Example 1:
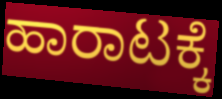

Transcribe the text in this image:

ಹಾರಾಟಕ್ಕೆ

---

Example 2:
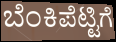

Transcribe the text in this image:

ಬೆಂಕಿಪೆಟ್ಟಿಗೆ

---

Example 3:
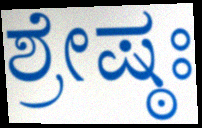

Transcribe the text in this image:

ಶ್ರೇಷ್ಠಃ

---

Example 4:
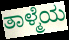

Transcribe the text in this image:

ತಾಳ್ಮೆಯ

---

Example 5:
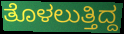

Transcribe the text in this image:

ತೊಳಲುತ್ತಿದ್ದ